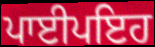
ਪਾਈਪਇਹ